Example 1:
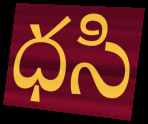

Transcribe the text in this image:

ధసి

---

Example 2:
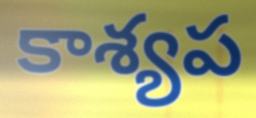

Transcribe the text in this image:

కాశ్యప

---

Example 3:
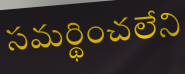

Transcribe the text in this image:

సమర్థించలేని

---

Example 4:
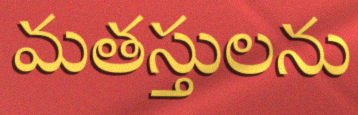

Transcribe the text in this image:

మతస్తులను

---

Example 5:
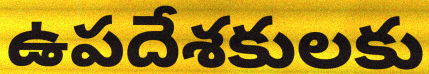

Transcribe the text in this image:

ఉపదేశకులకు